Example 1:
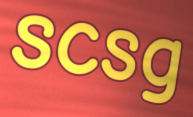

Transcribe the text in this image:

scsg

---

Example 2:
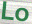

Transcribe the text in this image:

Lo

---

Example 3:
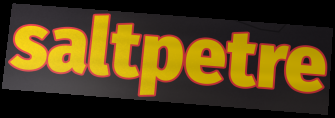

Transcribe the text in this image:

saltpetre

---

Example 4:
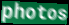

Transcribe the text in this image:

photos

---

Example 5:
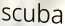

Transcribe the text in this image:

scuba